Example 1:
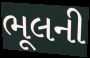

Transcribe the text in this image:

ભૂલની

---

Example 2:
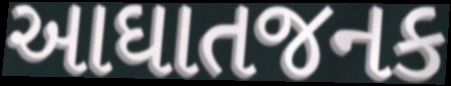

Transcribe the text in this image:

આઘાતજનક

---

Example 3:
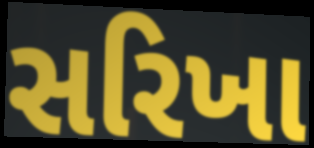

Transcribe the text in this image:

સરિખા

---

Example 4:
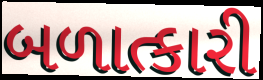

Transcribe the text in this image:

બળાત્કારી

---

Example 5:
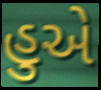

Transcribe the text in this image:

હુએ